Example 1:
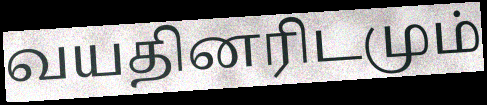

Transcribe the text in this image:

வயதினரிடமும்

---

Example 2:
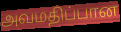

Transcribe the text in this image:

அவமதிப்பான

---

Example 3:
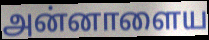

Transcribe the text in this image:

அன்னாளைய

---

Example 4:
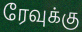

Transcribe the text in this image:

ரேவுக்கு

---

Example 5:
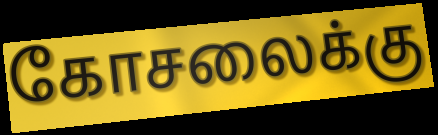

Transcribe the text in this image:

கோசலைக்கு